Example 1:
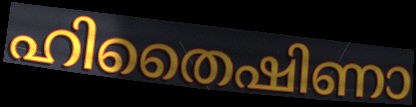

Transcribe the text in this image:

ഹിതൈഷിണാ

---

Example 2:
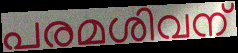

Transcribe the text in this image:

പരമശിവന്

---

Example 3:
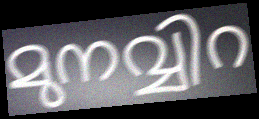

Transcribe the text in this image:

മുനവ്വിറ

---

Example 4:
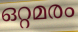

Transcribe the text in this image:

ഒറ്റമരം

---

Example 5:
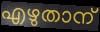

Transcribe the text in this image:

എഴുതാന്